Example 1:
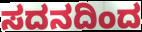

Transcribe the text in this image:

ಸದನದಿಂದ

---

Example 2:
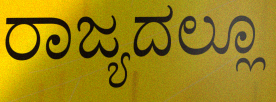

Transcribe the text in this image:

ರಾಜ್ಯದಲ್ಲೂ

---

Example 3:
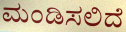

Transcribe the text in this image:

ಮಂಡಿಸಲಿದೆ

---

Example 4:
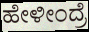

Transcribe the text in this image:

ಹೇಳೀಂದ್ರೆ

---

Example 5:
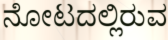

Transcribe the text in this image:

ನೋಟದಲ್ಲಿರುವ